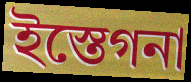
ইস্তেগনা